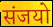
संजयो